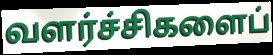
வளர்ச்சிகளைப்